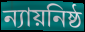
ন্যায়নিষ্ঠ